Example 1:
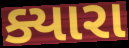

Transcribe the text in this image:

ક્યારા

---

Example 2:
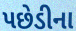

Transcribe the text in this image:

પછેડીના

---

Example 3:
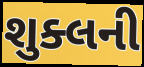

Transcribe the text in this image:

શુક્લની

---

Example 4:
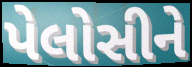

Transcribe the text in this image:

પેલોસીને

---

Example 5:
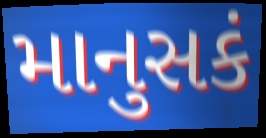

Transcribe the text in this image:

માનુસકં